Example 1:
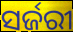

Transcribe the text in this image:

ସର୍ଜରୀ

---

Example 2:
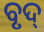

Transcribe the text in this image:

ବୃଦ୍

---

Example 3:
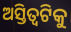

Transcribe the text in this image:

ଅସ୍ତିତ୍ୱଟିକୁ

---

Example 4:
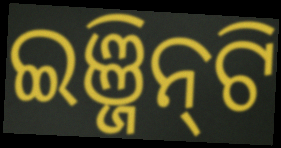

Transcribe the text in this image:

ଇଞ୍ଜିନ୍‌ଟି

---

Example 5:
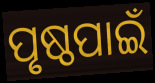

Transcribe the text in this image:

ପୃଷ୍ଠପାଇଁ